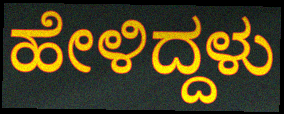
ಹೇಳಿದ್ದಳು